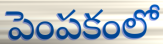
పెంపకంలో